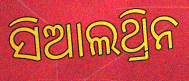
ସିଆଲଥ୍ରିନ